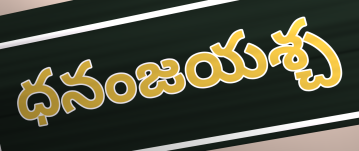
ధనంజయశ్చ